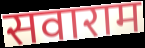
सवाराम